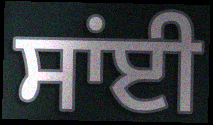
ਸਾਂਈ